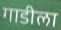
गाडीला